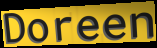
Doreen